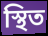
স্থিত